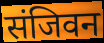
संजिवन